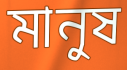
মানুষ